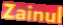
Zainul